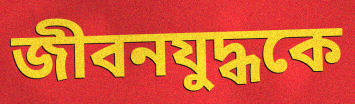
জীবনযুদ্ধকে